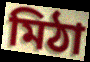
মিঠা